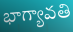
భాగ్యావతి